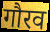
गौरव